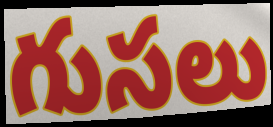
గుసలు